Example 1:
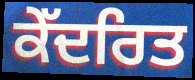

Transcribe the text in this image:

ਕੇੱਦਰਿਤ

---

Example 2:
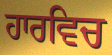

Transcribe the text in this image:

ਹਾਰਵਿਚ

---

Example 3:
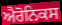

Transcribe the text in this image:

ਐਰੋਨਿਕਸ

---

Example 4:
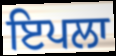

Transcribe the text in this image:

ਇਪਲਾ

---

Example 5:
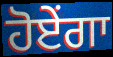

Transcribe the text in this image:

ਹੋਏਂਗਾ